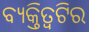
ବ୍ୟକ୍ତିତ୍ୱଟିର